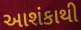
આશંકાથી